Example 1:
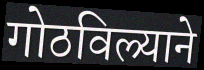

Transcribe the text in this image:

गोठविल्याने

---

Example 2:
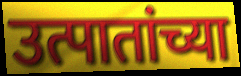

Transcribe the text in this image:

उत्पातांच्या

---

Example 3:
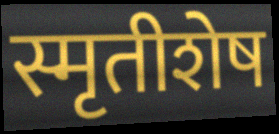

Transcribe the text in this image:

स्मृतीशेष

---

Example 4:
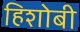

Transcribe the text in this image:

हिशोबी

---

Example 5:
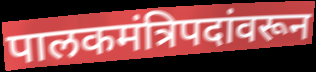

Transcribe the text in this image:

पालकमंत्रिपदांवरून